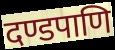
दण्डपाणि